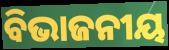
ବିଭାଜନୀୟ